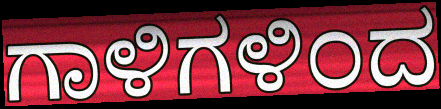
ಗಾಳಿಗಳಿಂದ